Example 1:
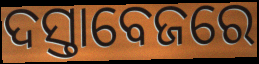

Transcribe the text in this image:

ଦସ୍ତାବେଜରେ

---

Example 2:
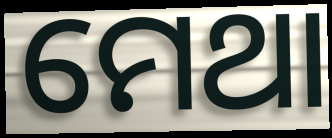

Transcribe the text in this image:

ମେଥା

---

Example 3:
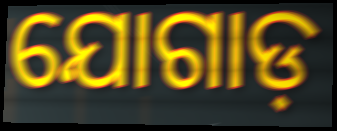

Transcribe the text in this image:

ଯୋଗାଡ଼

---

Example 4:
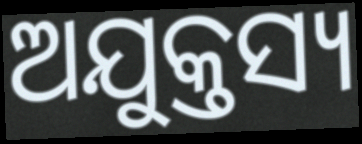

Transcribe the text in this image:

ଅଯୁକ୍ତସ୍ୟ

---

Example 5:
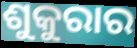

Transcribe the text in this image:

ଶୁକୁରାର